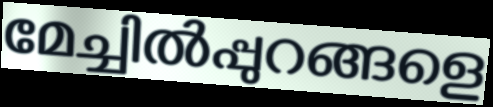
മേച്ചിൽപ്പുറങ്ങളെ